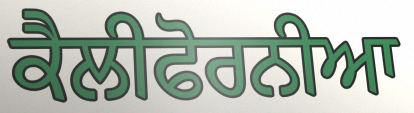
ਕੈਲੀਫੋਰਨੀਆ